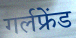
गर्लफ्रेंड